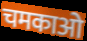
चमकाओ